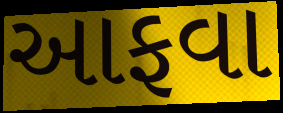
આફવા